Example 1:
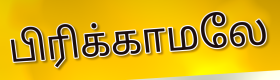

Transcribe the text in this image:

பிரிக்காமலே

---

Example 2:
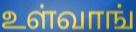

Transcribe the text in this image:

உள்வாங்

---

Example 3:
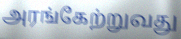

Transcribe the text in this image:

அரங்கேற்றுவது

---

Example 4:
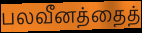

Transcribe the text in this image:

பலவீனத்தைத்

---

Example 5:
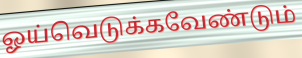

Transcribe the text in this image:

ஓய்வெடுக்கவேண்டும்